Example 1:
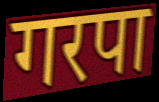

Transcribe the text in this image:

गरपा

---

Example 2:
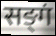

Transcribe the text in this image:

सङ्गं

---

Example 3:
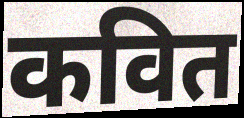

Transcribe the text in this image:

कवित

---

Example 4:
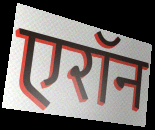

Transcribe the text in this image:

एरॉन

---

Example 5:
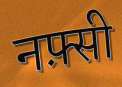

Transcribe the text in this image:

नफ़्सी